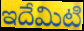
ఇదేమిటి